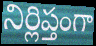
నిర్లిప్తంగా